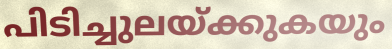
പിടിച്ചുലയ്ക്കുകയും